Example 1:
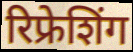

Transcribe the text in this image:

रिफ्रेशिंग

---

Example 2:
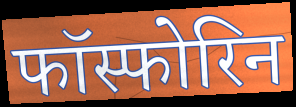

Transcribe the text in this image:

फॉस्फोरिन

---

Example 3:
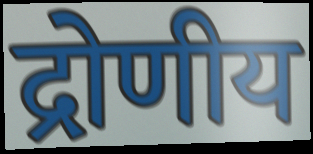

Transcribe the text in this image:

द्रोणीय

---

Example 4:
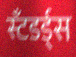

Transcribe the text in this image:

स्टँडर्ड्स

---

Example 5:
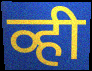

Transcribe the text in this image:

व्ही